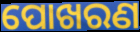
ପୋଖରଣ